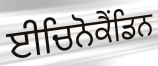
ਈਚਿਨੋਕੈਂਡਿਨ